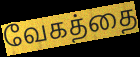
வேகத்தை